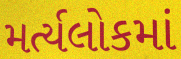
મર્ત્યલોકમાં